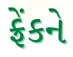
ફ્રેંકને